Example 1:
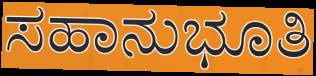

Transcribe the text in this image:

ಸಹಾನುಭೂತಿ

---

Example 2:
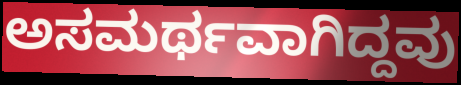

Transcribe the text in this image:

ಅಸಮರ್ಥವಾಗಿದ್ದವು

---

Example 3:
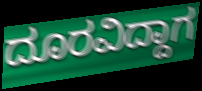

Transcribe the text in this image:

ದೂರವಿದ್ದಾಗ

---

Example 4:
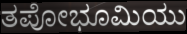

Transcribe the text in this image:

ತಪೋಭೂಮಿಯು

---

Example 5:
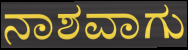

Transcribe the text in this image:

ನಾಶವಾಗು